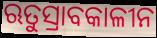
ଋତୁସ୍ରାବକାଳୀନ